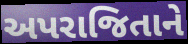
અપરાજિતાને